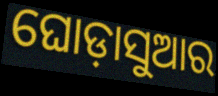
ଘୋଡ଼ାସୁଆର